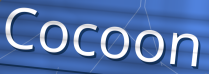
Cocoon